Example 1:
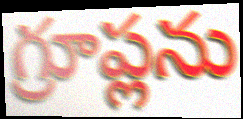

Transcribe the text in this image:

గ్రూప్లను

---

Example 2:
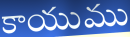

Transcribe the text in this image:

కాయుము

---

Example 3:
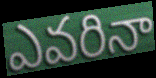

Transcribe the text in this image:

ఎవరినా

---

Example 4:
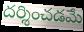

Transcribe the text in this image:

దర్శించడమే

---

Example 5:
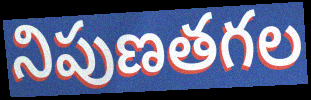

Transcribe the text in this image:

నిపుణతగల